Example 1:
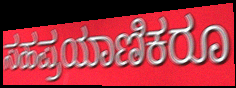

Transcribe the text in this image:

ಸಹಪ್ರಯಾಣಿಕರೂ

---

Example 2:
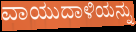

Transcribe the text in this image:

ವಾಯುದಾಳಿಯನ್ನು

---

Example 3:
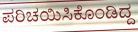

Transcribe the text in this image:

ಪರಿಚಯಿಸಿಕೊಂಡಿದ್ದ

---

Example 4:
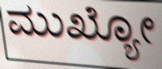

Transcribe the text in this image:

ಮುಖ್ಯೋ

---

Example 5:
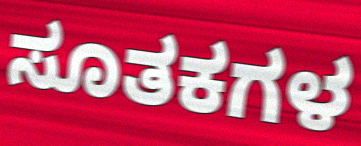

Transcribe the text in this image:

ಸೂತಕಗಳ